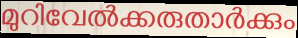
മുറിവേൽക്കരുതാർക്കും